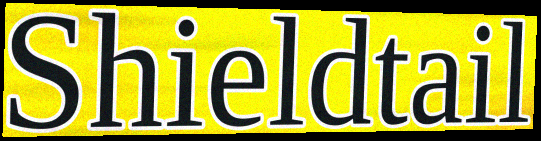
Shieldtail